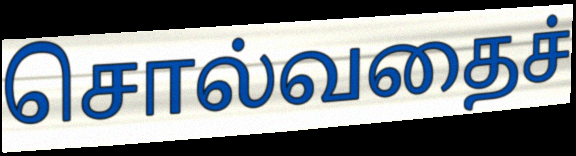
சொல்வதைச்